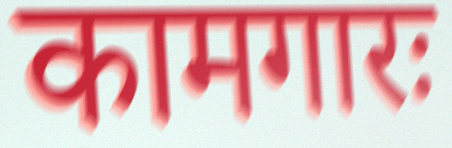
कामगारः